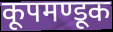
कूपमण्डूक